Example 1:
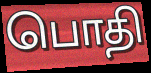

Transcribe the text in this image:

பொதி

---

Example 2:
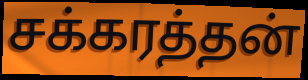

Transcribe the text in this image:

சக்கரத்தன்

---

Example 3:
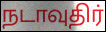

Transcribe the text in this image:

நடாவுதிர்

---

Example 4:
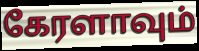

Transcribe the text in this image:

கேரளாவும்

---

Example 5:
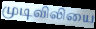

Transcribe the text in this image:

முடிவிலியை